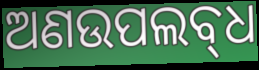
ଅଣଉପଲବ୍‌ଧ